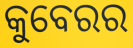
କୁବେରର